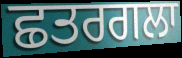
ਛਤਰਗਲਾ